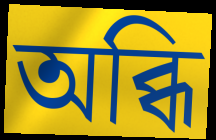
অব্ধি